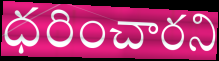
ధరించారని